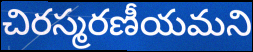
చిరస్మరణీయమని